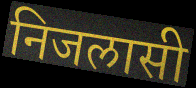
निजलासी